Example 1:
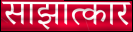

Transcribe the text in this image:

साझात्कार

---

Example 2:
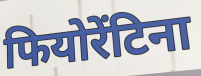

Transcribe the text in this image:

फियोरेंटिना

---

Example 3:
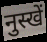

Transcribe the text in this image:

नुस्खें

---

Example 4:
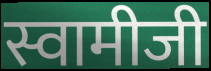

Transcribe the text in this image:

स्‍वामीजी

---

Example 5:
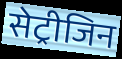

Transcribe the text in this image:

सेट्रीजिन